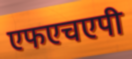
एफएचएपी